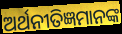
ଅର୍ଥନୀତିଜ୍ଞମାନଙ୍କ